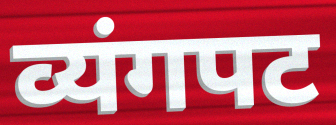
व्यंगपट